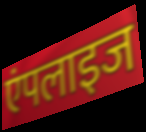
एंपलाइज